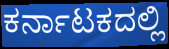
ಕರ್ನಾಟಕದಲ್ಲಿ